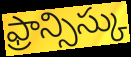
ఫ్రాన్సిస్కు